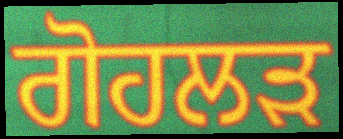
ਗੋਹਲੜ